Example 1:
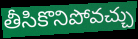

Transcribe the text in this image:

తీసికొనిపోవచ్చు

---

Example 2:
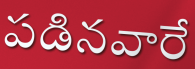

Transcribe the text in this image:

పడినవారే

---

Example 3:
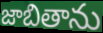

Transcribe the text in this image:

జాబితాను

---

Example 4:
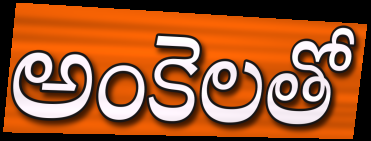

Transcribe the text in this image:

అంకెలతో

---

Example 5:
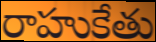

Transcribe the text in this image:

రాహుకేతు